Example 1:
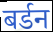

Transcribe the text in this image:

बर्डन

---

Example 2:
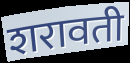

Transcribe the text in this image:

शरावती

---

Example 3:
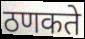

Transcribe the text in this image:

ठणकते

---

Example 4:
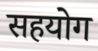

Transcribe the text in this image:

सहयोग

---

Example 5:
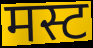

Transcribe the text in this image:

मस्ट